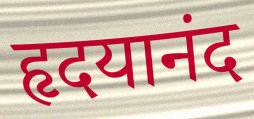
हृदयानंद